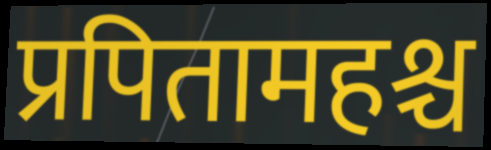
प्रपितामहश्च